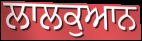
ਲਾਲਕੁਆਨ